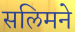
सलिमने